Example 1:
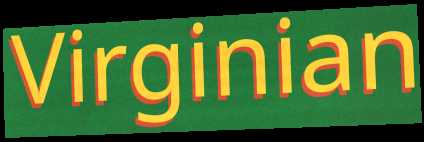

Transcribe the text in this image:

Virginian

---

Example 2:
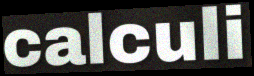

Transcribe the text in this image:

calculi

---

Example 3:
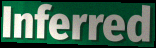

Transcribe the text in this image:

Inferred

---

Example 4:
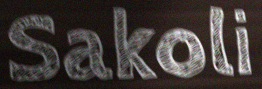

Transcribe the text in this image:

Sakoli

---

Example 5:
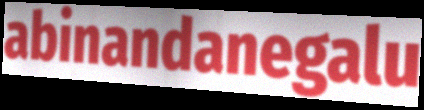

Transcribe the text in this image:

abinandanegalu